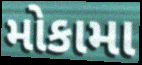
મોકામા